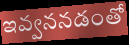
ఇవ్వననడంతో